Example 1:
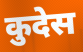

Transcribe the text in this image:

कुदेस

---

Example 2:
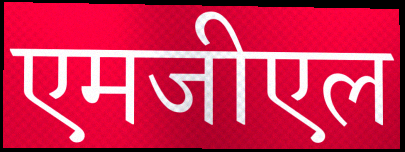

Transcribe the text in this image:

एमजीएल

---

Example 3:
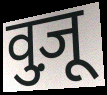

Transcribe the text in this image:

वुज़ू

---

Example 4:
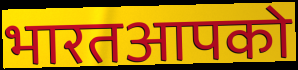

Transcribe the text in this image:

भारतआपको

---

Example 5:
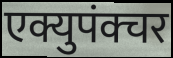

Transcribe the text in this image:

एक्युपंक्चर